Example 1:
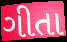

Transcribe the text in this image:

ગીતા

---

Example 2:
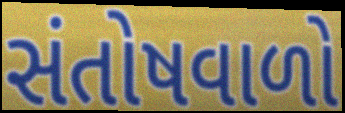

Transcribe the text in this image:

સંતોષવાળો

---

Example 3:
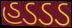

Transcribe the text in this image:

હડડડ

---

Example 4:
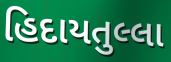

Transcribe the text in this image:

હિદાયતુલ્લા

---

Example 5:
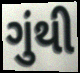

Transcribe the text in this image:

ગુંથી